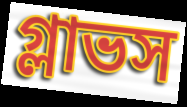
গ্লাভস